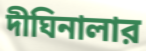
দীঘিনালার